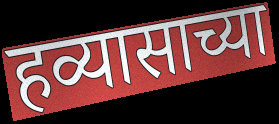
हव्यासाच्या